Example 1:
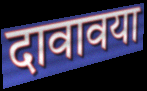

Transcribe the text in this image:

दावावया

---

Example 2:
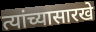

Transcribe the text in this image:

त्यांच्यासारखे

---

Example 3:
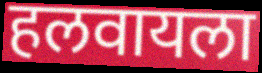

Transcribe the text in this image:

हलवायला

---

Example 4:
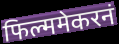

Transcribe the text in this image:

फिल्ममेकरनं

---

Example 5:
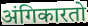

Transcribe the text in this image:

अंगिकारतो